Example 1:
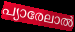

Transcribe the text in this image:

പ്യാരേലാൽ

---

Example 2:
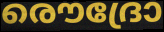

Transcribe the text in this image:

രൌദ്രോ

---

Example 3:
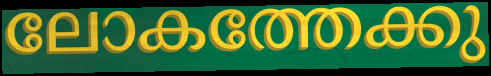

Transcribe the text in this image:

ലോകത്തേക്കു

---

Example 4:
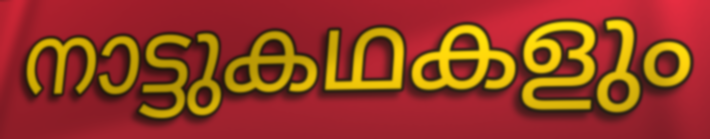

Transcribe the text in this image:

നാട്ടുകഥകളും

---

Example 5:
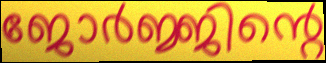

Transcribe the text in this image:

ജോർജ്ജിന്റെ